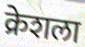
क्रेशला